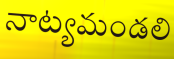
నాట్యమండలి